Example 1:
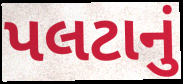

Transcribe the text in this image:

પલટાનું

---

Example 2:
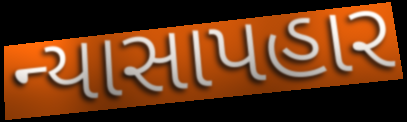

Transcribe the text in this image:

ન્યાસાપહાર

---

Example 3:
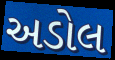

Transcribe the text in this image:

અડોલ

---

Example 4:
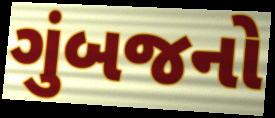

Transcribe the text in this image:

ગુંબજનો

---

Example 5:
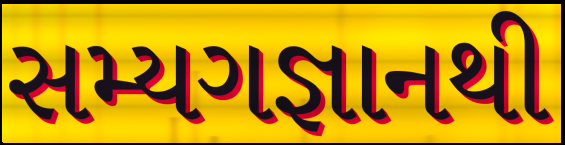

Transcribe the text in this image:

સમ્યગજ્ઞાનથી